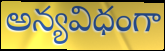
అన్యవిధంగా